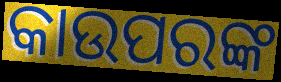
କାଉପରଙ୍କ